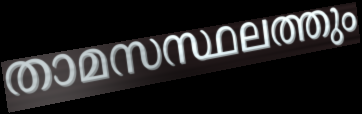
താമസസ്ഥലത്തും